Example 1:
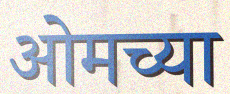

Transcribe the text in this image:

ओमच्या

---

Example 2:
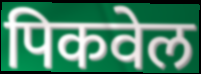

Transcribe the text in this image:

पिकवेल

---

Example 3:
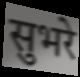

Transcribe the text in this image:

सुभरे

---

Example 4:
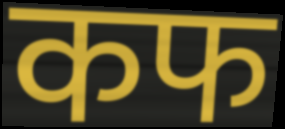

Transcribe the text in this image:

कफ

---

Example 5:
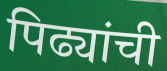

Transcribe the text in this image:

पिढ्यांची